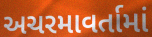
અચરમાવર્તામાં